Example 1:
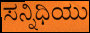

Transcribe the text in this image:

ಸನ್ನಿಧಿಯು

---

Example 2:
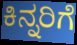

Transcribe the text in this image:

ಕಿನ್ನರಿಗೆ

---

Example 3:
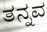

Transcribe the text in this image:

ತನ್ನವ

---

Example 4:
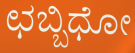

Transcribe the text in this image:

ಛಬ್ಬಿಧೋ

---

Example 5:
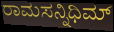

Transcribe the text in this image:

ರಾಮಸನ್ನಿಧಿಮ್